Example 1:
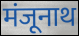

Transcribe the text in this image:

मंजूनाथ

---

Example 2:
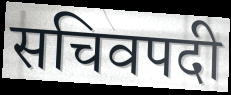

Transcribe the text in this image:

सचिवपदी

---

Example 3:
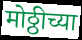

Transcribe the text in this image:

मोठ्ठीच्या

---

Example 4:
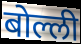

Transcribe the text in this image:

बोल्ली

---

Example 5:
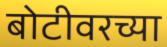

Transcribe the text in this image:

बोटीवरच्या